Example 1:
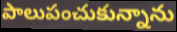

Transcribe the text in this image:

పాలుపంచుకున్నాను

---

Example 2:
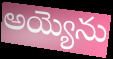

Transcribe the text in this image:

అయ్యెను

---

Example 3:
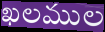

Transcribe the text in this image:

ఖలముల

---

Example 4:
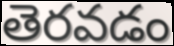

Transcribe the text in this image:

తెరవడం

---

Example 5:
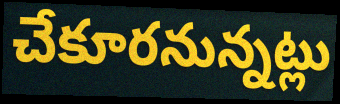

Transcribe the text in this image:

చేకూరనున్నట్లు